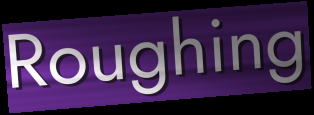
Roughing